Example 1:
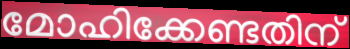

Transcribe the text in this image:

മോഹിക്കേണ്ടതിന്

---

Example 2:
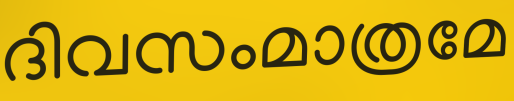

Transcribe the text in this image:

ദിവസംമാത്രമേ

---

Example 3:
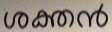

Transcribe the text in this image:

ശക്തൻ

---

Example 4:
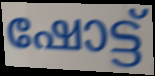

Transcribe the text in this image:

ഷോട്ട്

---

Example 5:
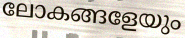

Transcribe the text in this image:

ലോകങ്ങളേയും